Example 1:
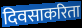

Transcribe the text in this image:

दिवसाकरिता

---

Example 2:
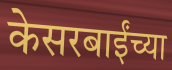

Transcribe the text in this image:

केसरबाईंच्या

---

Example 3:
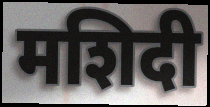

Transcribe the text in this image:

मशिदी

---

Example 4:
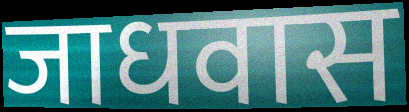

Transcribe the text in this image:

जाधवास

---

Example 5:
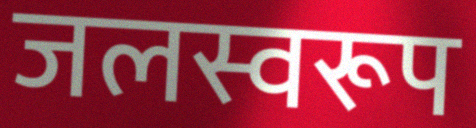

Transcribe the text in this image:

जलस्वरूप